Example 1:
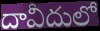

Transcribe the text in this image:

దావీదులో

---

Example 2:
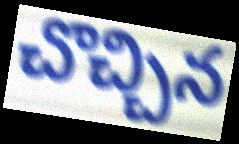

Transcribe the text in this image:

చొచ్చిన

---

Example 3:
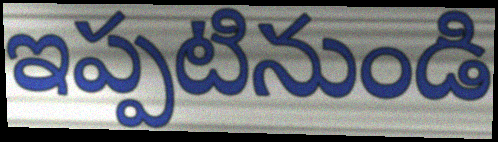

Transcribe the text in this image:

ఇప్పటినుండి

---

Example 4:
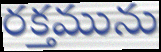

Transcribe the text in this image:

రక్తమును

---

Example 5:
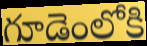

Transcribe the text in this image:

గూడెంలోకి